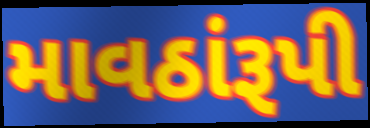
માવઠાંરૂપી